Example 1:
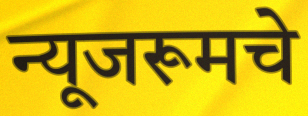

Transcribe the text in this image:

न्यूजरूमचे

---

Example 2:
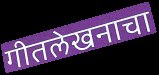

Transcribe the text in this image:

गीतलेखनाचा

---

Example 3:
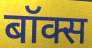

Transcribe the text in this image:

बॉक्स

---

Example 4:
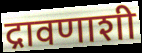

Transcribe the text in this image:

द्रावणाशी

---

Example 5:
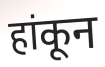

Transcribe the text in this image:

हांकून